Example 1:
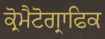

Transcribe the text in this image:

ਕ੍ਰੋਮੈਟੋਗ੍ਰਾਫਿਕ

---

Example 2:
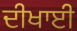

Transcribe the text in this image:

ਦੀਖਾਈ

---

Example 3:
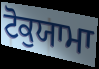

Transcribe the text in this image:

ਟੋਕੁਯਾਮਾ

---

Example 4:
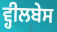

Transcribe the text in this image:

ਵ੍ਹੀਲਬੇਸ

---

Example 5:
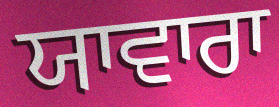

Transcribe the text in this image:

ਯਾਵਾਰਾ